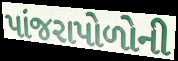
પાંજરાપોળોની